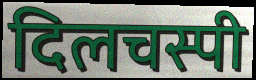
दिलचस्‍पी